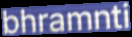
bhramnti